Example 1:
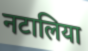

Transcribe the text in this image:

नटालिया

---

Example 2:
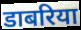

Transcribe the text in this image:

डाबरिया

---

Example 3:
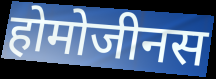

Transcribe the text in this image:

होमोजीनस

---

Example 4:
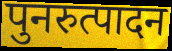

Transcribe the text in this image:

पुनरुत्पादन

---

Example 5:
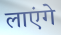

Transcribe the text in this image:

लाएंगे